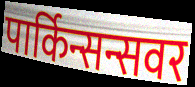
पार्किन्सन्सवर